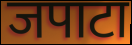
जपाटा